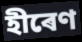
হীৰেণ